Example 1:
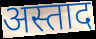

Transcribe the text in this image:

अस्ताद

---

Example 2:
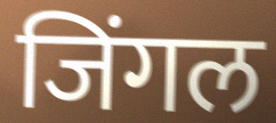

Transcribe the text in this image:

जिंगल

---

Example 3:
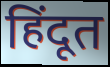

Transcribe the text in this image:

हिंदूत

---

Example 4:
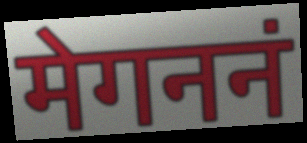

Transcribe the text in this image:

मेगननं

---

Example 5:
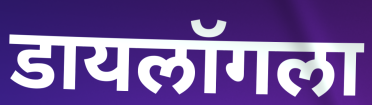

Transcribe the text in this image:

डायलॉगला